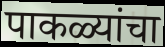
पाकळ्यांचा